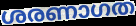
ശരണാഗത